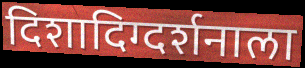
दिशादिग्दर्शनाला